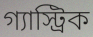
গ্যাস্ট্রিক